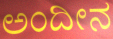
ಅಂದೀನ